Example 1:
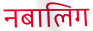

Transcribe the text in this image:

नबालिग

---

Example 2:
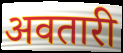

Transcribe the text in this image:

अवतारी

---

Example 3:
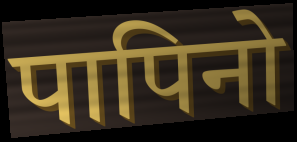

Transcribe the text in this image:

पापिनो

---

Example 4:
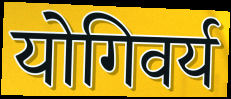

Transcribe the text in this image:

योगिवर्य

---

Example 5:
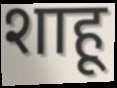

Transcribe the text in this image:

शाहू